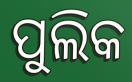
ପୁଲିକ